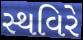
સ્થવિરે